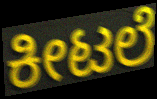
ಕೀಟಲೆ